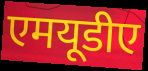
एमयूडीए